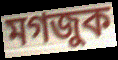
মগজুক